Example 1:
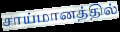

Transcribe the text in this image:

சாய்மானத்தில்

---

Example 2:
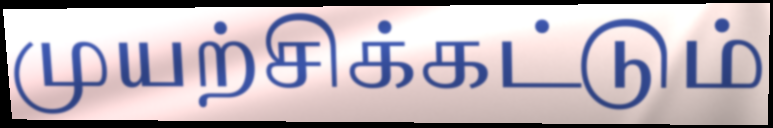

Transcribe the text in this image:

முயற்சிக்கட்டும்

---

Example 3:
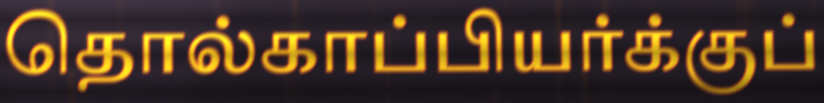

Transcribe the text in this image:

தொல்காப்பியர்க்குப்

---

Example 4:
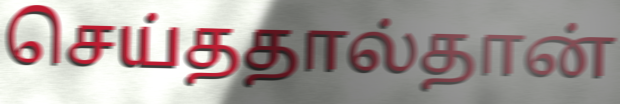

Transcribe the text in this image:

செய்ததால்தான்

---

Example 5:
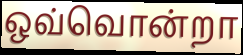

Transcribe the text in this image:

ஒவ்வொன்றா